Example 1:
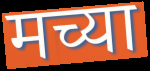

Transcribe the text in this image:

मच्या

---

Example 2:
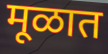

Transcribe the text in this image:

मूळात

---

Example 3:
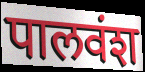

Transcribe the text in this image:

पालवंश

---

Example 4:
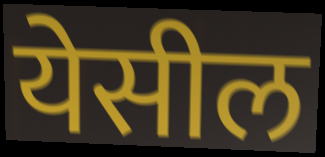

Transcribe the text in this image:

येसील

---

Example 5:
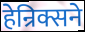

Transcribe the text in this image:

हेन्रिक्सने